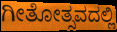
ಗೀತೋತ್ಸವದಲ್ಲಿ